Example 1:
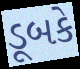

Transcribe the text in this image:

ડૂબકે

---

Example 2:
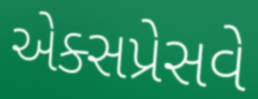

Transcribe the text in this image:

એક્સપ્રેસવે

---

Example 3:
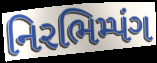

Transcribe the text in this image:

નિરભિમ્પંગ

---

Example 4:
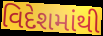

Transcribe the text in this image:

વિદેશમાંથી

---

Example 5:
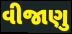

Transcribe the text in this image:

વીજાણુ